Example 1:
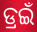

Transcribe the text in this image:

ଡ୍ରଇଁ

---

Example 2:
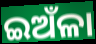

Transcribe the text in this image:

ଇଅଁଳା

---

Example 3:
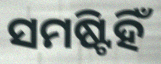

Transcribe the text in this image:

ସମଷ୍ଟିହିଁ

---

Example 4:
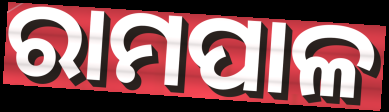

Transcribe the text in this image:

ରାମପାଳ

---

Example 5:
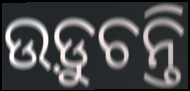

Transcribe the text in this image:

ଉଡ଼ୁଚନ୍ତି